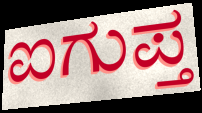
ಐಗುಪ್ತ